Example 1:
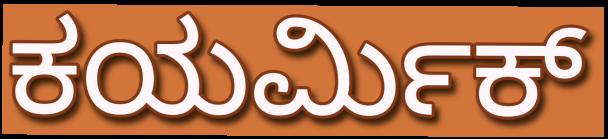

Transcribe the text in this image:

ಕಯರ್ಮಿಕ್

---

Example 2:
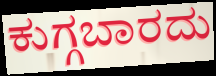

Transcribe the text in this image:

ಕುಗ್ಗಬಾರದು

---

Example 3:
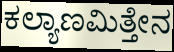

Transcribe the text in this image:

ಕಲ್ಯಾಣಮಿತ್ತೇನ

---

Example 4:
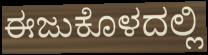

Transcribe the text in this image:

ಈಜುಕೊಳದಲ್ಲಿ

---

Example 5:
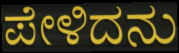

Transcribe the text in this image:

ಪೇಳಿದನು